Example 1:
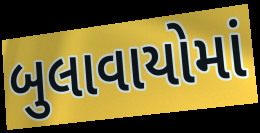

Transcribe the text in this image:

બુલાવાયોમાં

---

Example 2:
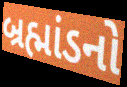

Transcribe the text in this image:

બ્રહ્માંડનો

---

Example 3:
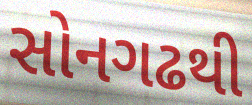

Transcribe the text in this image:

સોનગઢથી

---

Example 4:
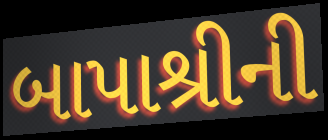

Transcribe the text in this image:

બાપાશ્રીની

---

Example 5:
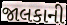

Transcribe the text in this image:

જાલકાની